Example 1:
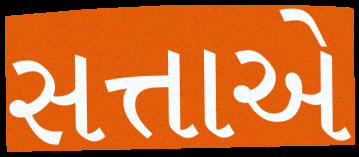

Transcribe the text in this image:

સત્તાએ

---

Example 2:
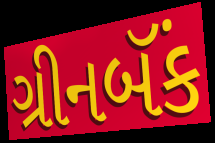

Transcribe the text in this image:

ગ્રીનબૅંક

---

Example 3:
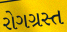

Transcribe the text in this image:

રોગગ્રસ્ત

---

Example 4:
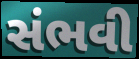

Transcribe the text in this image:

સંભવી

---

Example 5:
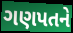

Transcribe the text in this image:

ગણપતને